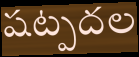
షట్పదల